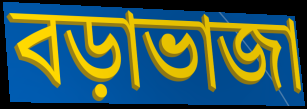
বড়াভাজা